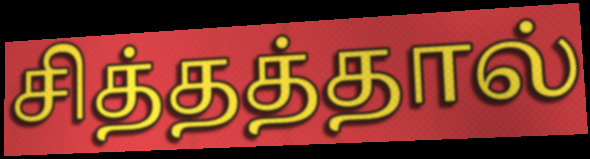
சித்தத்தால்